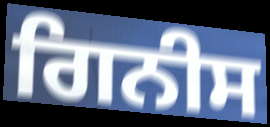
ਗਿਨੀਸ